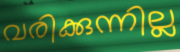
വരിക്കുന്നില്ല